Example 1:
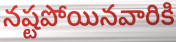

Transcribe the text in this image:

నష్టపోయినవారికి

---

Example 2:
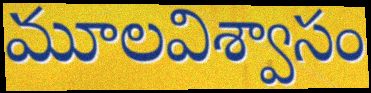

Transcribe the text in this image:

మూలవిశ్వాసం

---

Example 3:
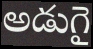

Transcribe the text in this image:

అడుగై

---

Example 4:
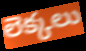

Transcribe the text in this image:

లెక్కలు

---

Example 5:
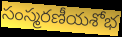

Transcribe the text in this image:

సంస్మరణీయశోభ